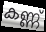
കണ്ണ്